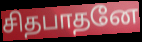
சிதபாதனே